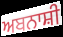
ਅਬਨਾਸ਼ੀ